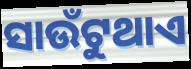
ସାଉଁଟୁଥାଏ